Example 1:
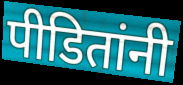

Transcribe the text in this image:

पीडितांनी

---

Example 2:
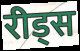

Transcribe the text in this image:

रीड्स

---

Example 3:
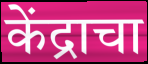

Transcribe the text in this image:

केंद्राचा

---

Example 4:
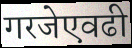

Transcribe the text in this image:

गरजेएवढी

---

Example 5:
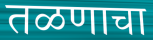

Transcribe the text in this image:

तळणाचा